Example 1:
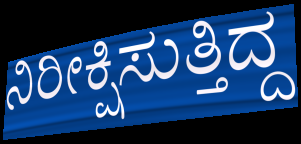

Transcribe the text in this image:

ನಿರೀಕ್ಷಿಸುತ್ತಿದ್ದ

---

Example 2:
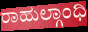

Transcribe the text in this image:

ರಾಹುಲ್ಗಾಂಧಿ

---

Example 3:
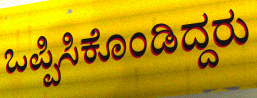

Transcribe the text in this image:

ಒಪ್ಪಿಸಿಕೊಂಡಿದ್ದರು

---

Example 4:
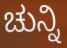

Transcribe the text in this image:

ಚುನ್ನಿ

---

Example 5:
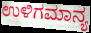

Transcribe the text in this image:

ಉಳಿಗಮಾನ್ಯ